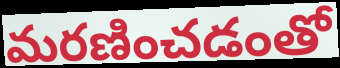
మరణించడంతో